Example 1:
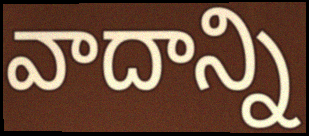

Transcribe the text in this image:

వాదాన్ని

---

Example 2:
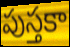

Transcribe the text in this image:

పుస్తకా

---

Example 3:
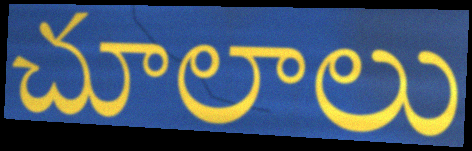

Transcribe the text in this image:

చూలాలు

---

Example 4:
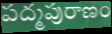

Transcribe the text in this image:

పద్మపురాణం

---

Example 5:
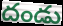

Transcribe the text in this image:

దండు